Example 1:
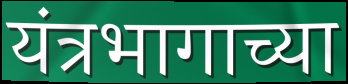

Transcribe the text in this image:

यंत्रभागाच्या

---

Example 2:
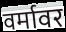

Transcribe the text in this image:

वर्मावर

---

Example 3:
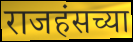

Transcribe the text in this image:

राजहंसच्या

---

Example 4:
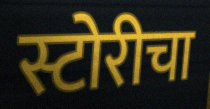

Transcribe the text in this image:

स्टोरीचा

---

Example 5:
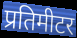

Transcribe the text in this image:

प्रतिमीटर